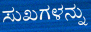
ಸುಖಗಳನ್ನು